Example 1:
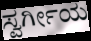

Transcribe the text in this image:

ಸ್ವರ್ಗೀಯ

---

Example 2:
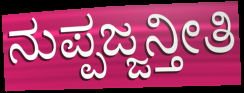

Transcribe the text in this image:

ನುಪ್ಪಜ್ಜನ್ತೀತಿ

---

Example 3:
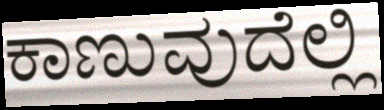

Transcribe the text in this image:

ಕಾಣುವುದೆಲ್ಲಿ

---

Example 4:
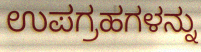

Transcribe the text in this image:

ಉಪಗ್ರಹಗಳನ್ನು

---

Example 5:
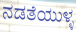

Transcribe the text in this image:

ನಡತೆಯುಳ್ಳ